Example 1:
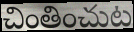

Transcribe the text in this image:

చింతించుట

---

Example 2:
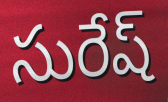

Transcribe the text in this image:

సురేష్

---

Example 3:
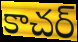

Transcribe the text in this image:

కాచర్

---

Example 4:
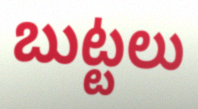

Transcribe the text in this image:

బుట్టలు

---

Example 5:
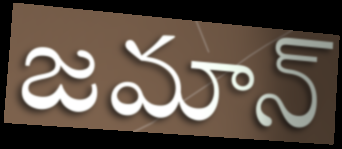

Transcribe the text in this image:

జమాన్